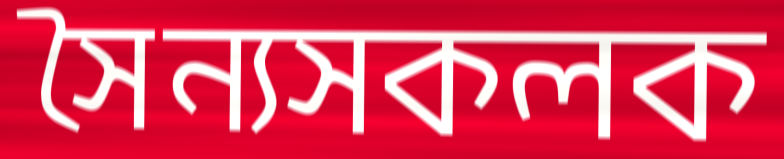
সৈন্যসকলক